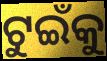
ଟୁଇଁକୁ